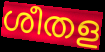
ശീതള